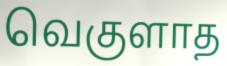
வெகுளாத